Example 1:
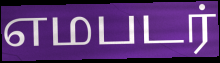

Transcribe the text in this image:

எமபடர்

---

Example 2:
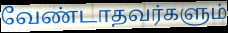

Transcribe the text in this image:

வேண்டாதவர்களும்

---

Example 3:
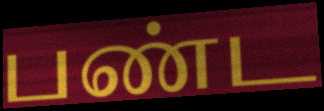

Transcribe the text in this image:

பண்ட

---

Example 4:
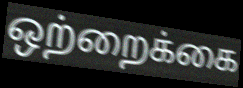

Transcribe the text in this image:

ஒற்றைக்கை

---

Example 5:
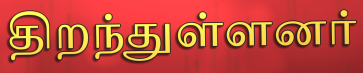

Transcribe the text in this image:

திறந்துள்ளனர்